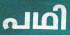
പഥി